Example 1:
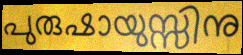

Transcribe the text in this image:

പുരുഷായുസ്സിനു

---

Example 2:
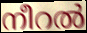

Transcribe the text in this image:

നീറൽ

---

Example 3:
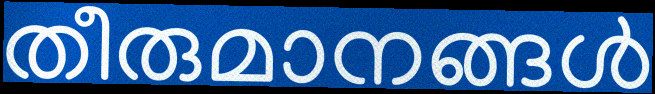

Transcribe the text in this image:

തീരുമാനങ്ങൾ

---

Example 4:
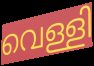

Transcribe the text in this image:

വെള്ളി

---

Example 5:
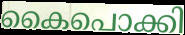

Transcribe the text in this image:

കൈപൊക്കി